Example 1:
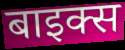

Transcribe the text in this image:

बाइक्स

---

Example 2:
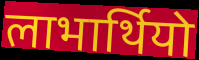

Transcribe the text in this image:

लाभार्थियो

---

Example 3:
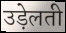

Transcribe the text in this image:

उड़ेलती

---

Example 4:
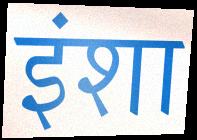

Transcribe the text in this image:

इंशा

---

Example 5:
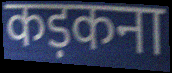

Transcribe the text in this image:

कड़कना